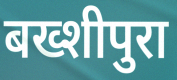
बख्शीपुरा